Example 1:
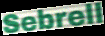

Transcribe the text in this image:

Sebrell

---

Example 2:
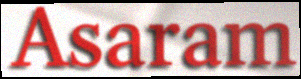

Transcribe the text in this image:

Asaram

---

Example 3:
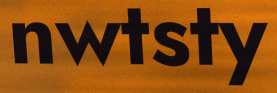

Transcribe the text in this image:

nwtsty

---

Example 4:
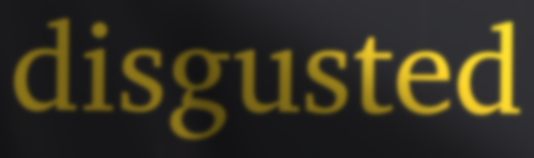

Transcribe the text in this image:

disgusted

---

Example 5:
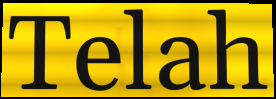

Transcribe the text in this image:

Telah